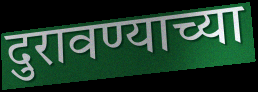
दुरावण्याच्या